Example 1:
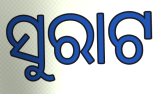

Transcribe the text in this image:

ସୁରାଟ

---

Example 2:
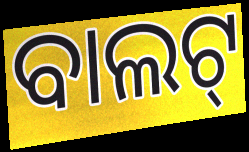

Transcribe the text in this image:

ବାଲଟ୍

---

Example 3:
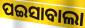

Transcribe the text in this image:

ପଇସାବାଲା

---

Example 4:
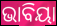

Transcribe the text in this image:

ଭାବିୟା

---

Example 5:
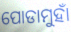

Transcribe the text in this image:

ପୋଡାମୁହାଁ